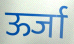
ऊर्जा